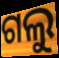
ଗଲୁ